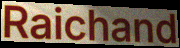
Raichand